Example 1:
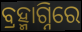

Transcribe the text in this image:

ବ୍ରହ୍ମାଗ୍ନିରେ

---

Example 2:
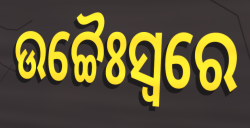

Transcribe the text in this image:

ଉଚ୍ଚୈଃସ୍ୱରେ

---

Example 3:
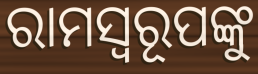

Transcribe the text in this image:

ରାମସ୍ୱରୂପଙ୍କୁ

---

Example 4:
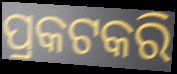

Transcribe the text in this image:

ପ୍ରକଟକରି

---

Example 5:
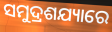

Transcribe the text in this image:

ସମୁଦ୍ରଶଯ୍ୟାରେ